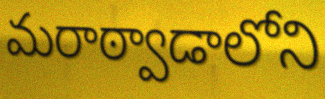
మరాఠ్వాడాలోని